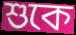
শুকে